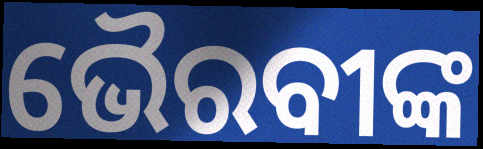
ଭୈରବୀଙ୍କ